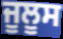
ਜੂਲੂਸ